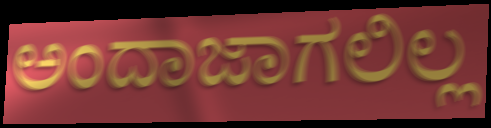
ಅಂದಾಜಾಗಲಿಲ್ಲ